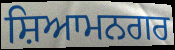
ਸ਼ਿਆਮਨਗਰ